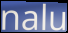
nalu